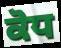
ਕੋਧ